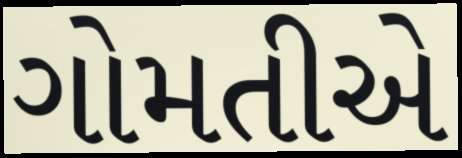
ગોમતીએ